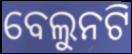
ବେଲୁନଟି